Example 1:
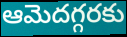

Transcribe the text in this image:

ఆమెదగ్గరకు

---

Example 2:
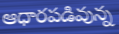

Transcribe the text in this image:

ఆధారపడివున్న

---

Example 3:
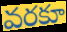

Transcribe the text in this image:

వరకూ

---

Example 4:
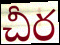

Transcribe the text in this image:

చీర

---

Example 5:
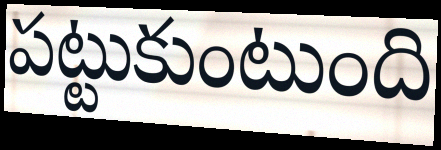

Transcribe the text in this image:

పట్టుకుంటుంది